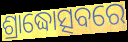
ଶ୍ରାଦ୍ଧୋତ୍ସବରେ